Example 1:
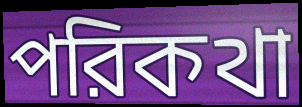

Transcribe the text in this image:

পরিকথা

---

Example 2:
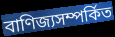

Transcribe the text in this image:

বাণিজ্যসম্পর্কিত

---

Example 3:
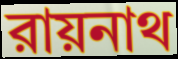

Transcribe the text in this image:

রায়নাথ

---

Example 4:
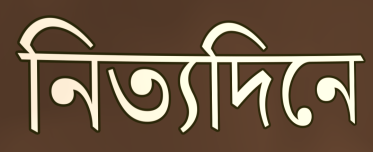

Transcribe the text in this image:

নিত্যদিনে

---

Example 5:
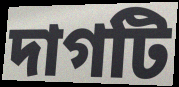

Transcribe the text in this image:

দাগটি